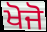
ਖੋਜੋ